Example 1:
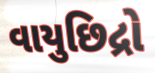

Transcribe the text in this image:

વાયુછિદ્રો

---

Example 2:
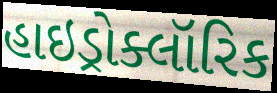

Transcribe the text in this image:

હાઇડ્રોક્લૉરિક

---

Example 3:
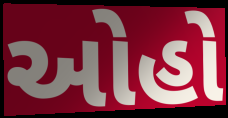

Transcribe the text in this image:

ઓહો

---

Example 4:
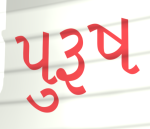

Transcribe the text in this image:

પુરૂષ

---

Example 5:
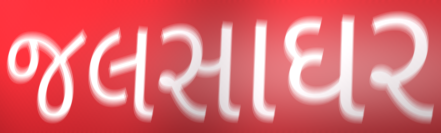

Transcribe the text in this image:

જલસાઘર